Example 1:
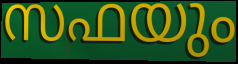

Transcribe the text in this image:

സഫയും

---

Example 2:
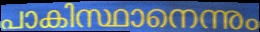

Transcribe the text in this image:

പാകിസ്ഥാനെന്നും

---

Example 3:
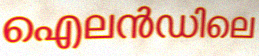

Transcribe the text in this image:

ഐലൻഡിലെ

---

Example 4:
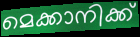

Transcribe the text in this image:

മെക്കാനിക്ക്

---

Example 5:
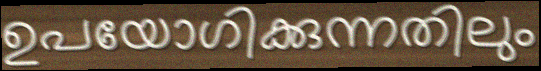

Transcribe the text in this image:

ഉപയോഗിക്കുന്നതിലും